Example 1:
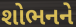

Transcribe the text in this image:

શોભનને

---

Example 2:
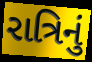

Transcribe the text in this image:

રાત્રિનું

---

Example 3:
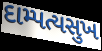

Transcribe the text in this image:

દામ્પત્યસુખ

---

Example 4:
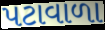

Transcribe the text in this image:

પટાવાળા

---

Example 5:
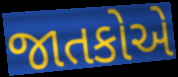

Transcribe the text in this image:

જાતકોએ